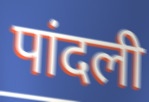
पांदली